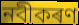
নবীকৰণ